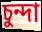
চুন্দা